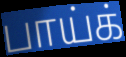
பாய்க்